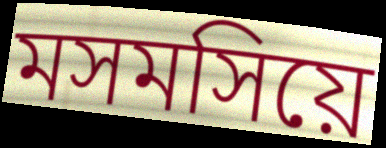
মসমসিয়ে